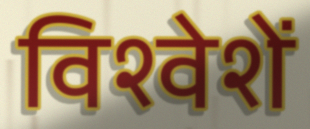
विश्वेशें